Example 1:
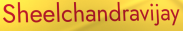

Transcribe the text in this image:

Sheelchandravijay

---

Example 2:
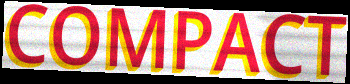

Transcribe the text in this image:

COMPACT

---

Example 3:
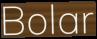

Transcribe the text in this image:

Bolar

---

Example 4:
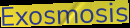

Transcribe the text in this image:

Exosmosis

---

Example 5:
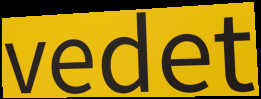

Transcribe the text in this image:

vedet